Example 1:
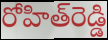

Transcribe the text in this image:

రోహిత్‌రెడ్డి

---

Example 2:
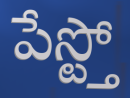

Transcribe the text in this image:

పేస్ట్తో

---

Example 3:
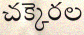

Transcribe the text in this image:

చక్కెరల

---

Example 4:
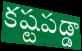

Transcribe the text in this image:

కష్టపడ్డా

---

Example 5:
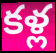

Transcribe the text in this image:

కళ్ల